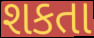
શકતા